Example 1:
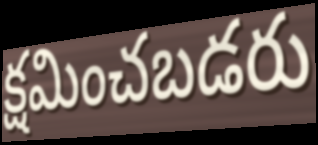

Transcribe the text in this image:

క్షమించబడరు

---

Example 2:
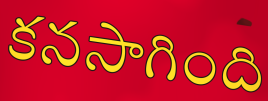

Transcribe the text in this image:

కనసాగింది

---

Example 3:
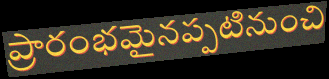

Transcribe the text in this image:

ప్రారంభమైనప్పటినుంచి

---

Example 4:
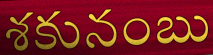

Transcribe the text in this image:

శకునంబు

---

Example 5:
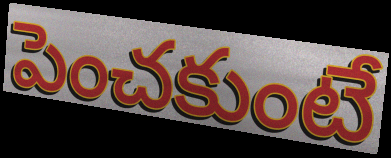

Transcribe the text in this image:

పెంచకుంటే